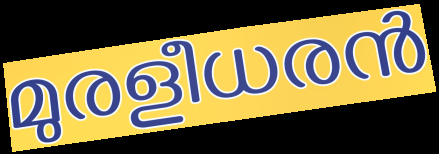
മുരളീധരൻ